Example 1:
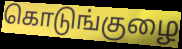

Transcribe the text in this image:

கொடுங்குழை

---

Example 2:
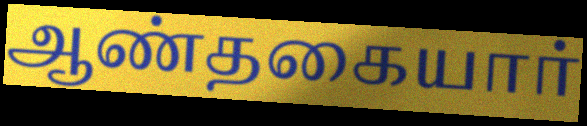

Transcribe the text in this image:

ஆண்தகையார்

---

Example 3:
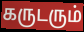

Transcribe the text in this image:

கருடரும்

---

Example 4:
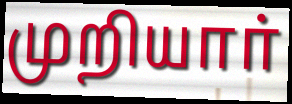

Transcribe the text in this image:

முறியார்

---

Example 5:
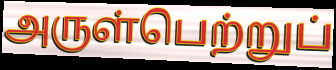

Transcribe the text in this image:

அருள்பெற்றுப்